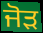
ਜੋੜ